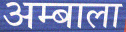
अम्बाला